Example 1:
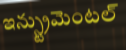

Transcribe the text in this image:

ఇన్స్ట్రుమెంటల్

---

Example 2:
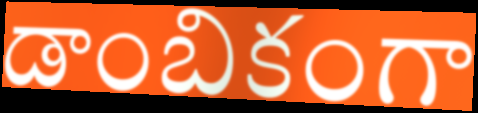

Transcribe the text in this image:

డాంబికంగా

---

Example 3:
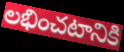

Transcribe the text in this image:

లభించటానికి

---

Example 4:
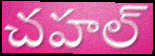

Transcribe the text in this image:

చహల్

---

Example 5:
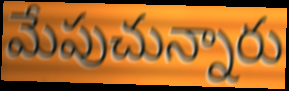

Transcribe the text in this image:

మేపుచున్నారు